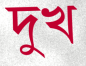
দুখ